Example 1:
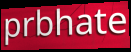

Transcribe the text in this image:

prbhate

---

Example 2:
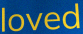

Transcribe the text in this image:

loved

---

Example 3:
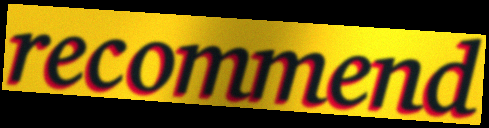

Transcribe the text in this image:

recommend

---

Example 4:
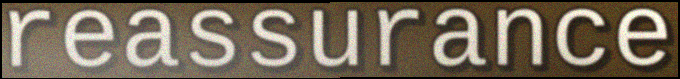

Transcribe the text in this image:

reassurance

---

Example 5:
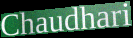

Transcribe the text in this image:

Chaudhari